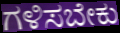
ಗಳಿಸಬೇಕು